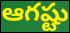
ఆగష్టు